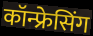
कॉन्फ्रेसिंग